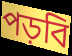
পড়বি